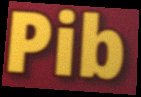
Pib